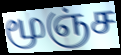
மூஞ்ச